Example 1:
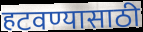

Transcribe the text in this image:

हटवण्यासाठी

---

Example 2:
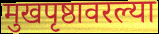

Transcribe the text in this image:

मुखपृष्ठावरल्या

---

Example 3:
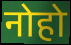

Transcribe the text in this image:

नोहो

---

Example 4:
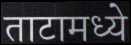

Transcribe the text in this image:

ताटामध्ये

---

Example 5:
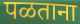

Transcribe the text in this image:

पळताना